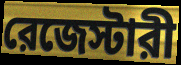
রেজেস্টারী